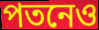
পতনেও